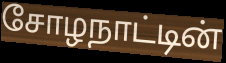
சோழநாட்டின்